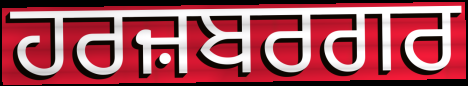
ਹਰਜ਼ਬਰਗਰ